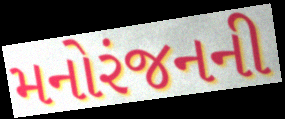
મનોરંજનની